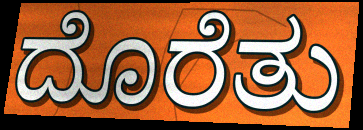
ದೊರೆತು